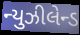
ન્યુઝીલેન્ડ